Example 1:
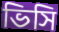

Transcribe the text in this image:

ভিসি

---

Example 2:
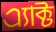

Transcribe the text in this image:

এ্যাক্ট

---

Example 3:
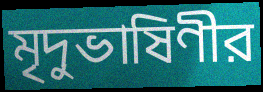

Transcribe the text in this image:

মৃদুভাষিণীর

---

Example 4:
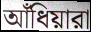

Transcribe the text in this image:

আঁধিয়ারা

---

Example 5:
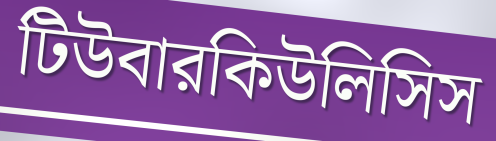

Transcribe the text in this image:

টিউবারকিউলিসিস